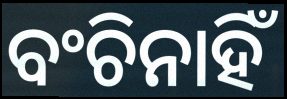
ବଂଚିନାହିଁ